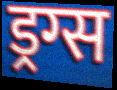
ड्रग्‍स